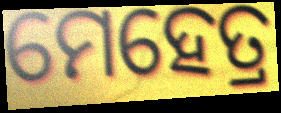
ମେହେତ୍ର